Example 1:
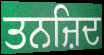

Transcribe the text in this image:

ਤਨਜ਼ਿਦ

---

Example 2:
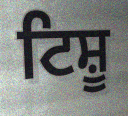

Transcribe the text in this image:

ਟਿਸ਼ੂ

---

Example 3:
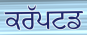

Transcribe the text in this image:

ਕਰੱਪਟਡ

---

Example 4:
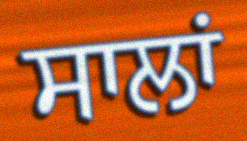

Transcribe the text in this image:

ਸਾਲਾਂ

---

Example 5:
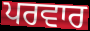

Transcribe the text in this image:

ਪਰਵਾਰ